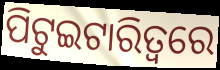
ପିଟୁଇଟାରିତ୍ୱରେ